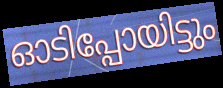
ഓടിപ്പോയിട്ടും